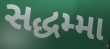
સદ્ધમ્મા